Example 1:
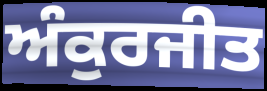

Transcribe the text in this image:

ਅੰਕੁਰਜੀਤ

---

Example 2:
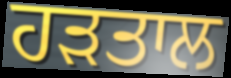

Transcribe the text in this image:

ਹੜਤਾਲ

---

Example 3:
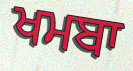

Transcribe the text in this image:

ਖਮਬਾ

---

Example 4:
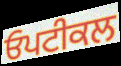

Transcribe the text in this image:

ਓਪਟੀਕਲ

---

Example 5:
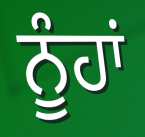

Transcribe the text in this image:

ਨੂੰਹਾਂ